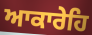
ਆਕਾਰੇਹਿ